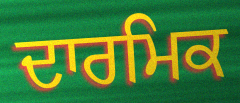
ਦਾਰਮਿਕ